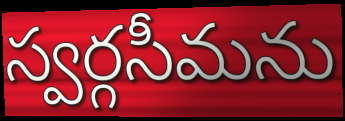
స్వర్గసీమను